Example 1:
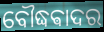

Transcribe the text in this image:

ବୌଦ୍ଧଵାଦର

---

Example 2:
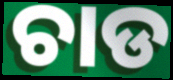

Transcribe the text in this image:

ଚାଡ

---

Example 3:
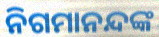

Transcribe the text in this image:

ନିଗମାନନ୍ଦଙ୍କ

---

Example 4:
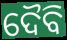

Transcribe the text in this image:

ଦୈବି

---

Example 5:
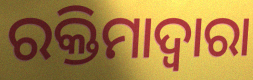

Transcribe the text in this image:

ରକ୍ତିମାଦ୍ୱାରା